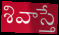
శివాస్తే